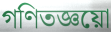
গণিতজ্ঞয়ো